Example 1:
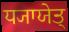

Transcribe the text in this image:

ਧ੍ਯਾਯੇਤ੍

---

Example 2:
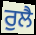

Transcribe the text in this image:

ਰੁਲੈ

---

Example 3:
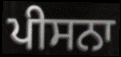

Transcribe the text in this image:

ਪੀਸਨਾ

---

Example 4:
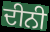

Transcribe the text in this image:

ਦੀਨੀ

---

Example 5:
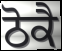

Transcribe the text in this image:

ਠੋਕੈ